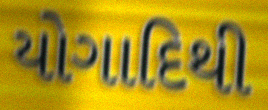
યોગાદિથી